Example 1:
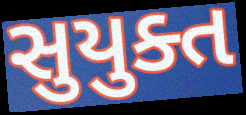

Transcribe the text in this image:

સુયુક્ત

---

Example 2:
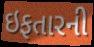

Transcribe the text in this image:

ઇફતારની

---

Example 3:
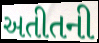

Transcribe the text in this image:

અતીતની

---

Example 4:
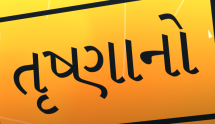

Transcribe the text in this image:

તૃષ્ણાનો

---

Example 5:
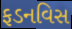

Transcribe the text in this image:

ફડનવિસ